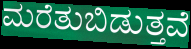
ಮರೆತುಬಿಡುತ್ತವೆ